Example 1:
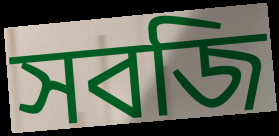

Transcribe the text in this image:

সবজি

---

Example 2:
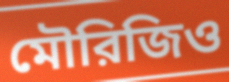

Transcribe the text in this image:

মৌরিজিও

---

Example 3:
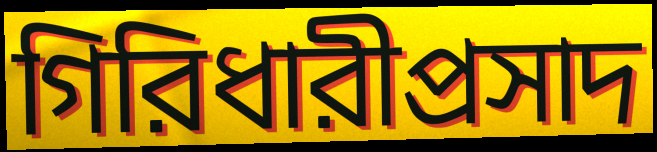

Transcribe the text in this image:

গিরিধারীপ্রসাদ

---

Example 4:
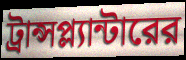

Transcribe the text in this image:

ট্রান্সপ্ল্যান্টারের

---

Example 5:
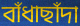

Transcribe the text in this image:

বাঁধাছাঁদা